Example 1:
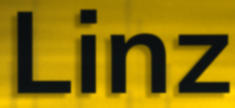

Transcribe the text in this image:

Linz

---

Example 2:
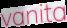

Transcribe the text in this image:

vanita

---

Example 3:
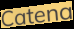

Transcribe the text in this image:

Catena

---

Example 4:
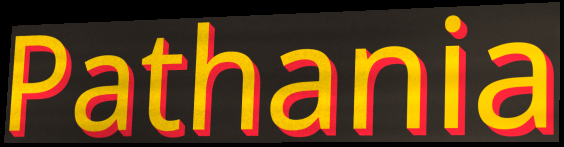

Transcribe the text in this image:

Pathania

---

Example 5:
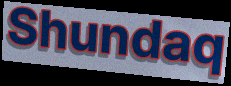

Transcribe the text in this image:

Shundaq